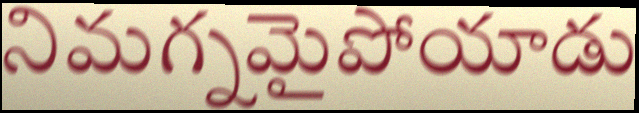
నిమగ్నమైపోయాడు